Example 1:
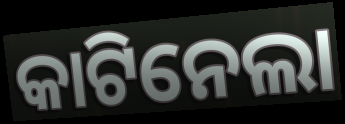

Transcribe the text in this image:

କାଟିନେଲା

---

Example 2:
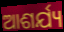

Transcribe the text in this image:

ଆଶର୍ଯ୍ୟ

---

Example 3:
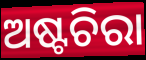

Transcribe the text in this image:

ଅଷ୍ଟଚିରା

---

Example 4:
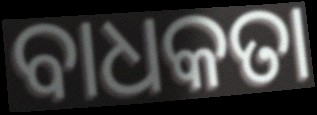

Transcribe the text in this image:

ବାଧକତା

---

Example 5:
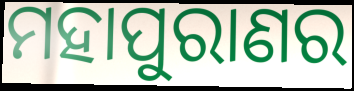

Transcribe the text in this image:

ମହାପୁରାଣର